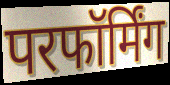
परफॉर्मिंग